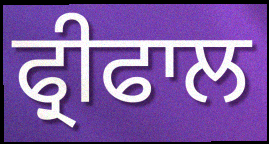
ਫ੍ਰੀਫਾਲ